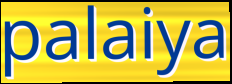
palaiya